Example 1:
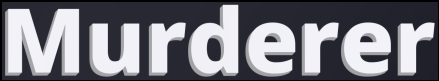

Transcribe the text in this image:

Murderer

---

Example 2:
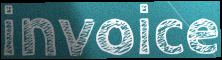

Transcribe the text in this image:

invoice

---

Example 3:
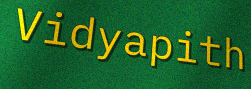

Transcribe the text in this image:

Vidyapith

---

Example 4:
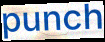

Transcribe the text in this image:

punch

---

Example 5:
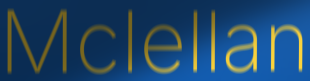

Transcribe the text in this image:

Mclellan